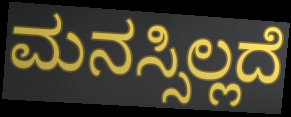
ಮನಸ್ಸಿಲ್ಲದೆ